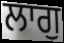
ਲਾਗੁ